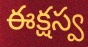
ఈక్షస్వ